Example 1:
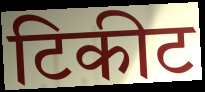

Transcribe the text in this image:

टिकीट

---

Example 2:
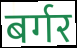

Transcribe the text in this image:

बर्गर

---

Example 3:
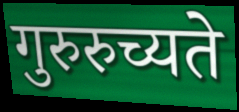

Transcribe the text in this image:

गुरुरुच्यते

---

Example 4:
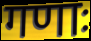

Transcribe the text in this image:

गणाः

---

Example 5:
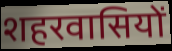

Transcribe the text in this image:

शहरवासियों